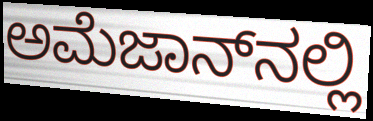
ಅಮೆಜಾನ್‌ನಲ್ಲಿ